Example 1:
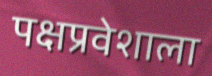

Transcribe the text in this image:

पक्षप्रवेशाला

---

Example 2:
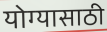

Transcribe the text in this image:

योग्यासाठी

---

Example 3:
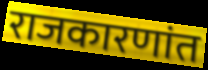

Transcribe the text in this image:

राजकारणांत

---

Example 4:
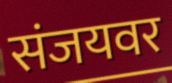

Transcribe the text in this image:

संजयवर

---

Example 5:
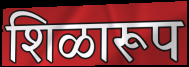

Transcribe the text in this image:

शिळारूप